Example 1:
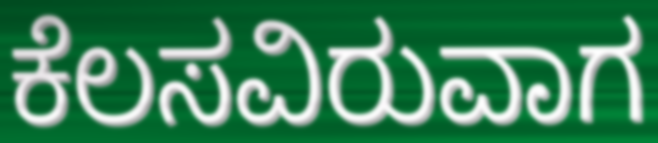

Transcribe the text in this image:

ಕೆಲಸವಿರುವಾಗ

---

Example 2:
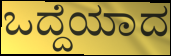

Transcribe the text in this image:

ಒದ್ದೆಯಾದ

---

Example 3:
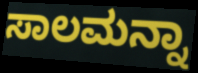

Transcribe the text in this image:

ಸಾಲಮನ್ನಾ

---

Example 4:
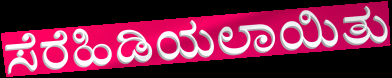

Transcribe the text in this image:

ಸೆರೆಹಿಡಿಯಲಾಯಿತು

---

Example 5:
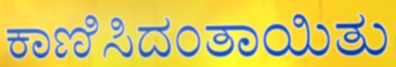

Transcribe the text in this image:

ಕಾಣಿಸಿದಂತಾಯಿತು